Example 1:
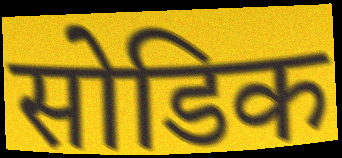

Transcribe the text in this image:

सोडिक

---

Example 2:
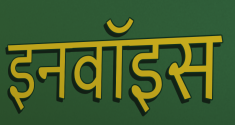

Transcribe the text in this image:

इनवॉइस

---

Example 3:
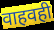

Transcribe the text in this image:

वाहवही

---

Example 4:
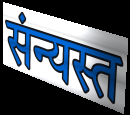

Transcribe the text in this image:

संन्यस्त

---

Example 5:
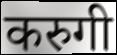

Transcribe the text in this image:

करुगी